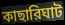
কাছারিঘাট